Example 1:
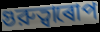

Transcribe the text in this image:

গুৰুত্বাৰোপ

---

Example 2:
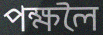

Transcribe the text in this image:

পক্ষলৈ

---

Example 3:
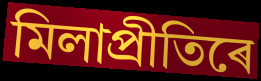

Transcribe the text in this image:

মিলাপ্ৰীতিৰে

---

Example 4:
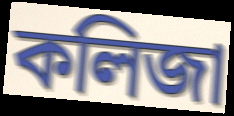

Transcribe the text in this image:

কলিজা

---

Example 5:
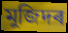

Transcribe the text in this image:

মুজিদৰ